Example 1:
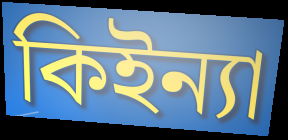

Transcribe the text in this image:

কিইন্যা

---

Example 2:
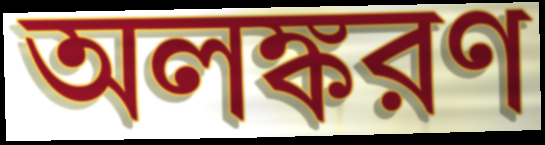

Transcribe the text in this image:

অলঙ্করণ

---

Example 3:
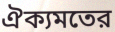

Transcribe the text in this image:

ঐক্যমতের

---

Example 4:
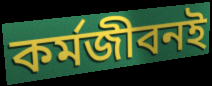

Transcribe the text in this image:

কর্মজীবনই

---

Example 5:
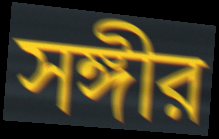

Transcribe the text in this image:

সঙ্গীর